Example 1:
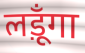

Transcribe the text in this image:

लड़ूँगा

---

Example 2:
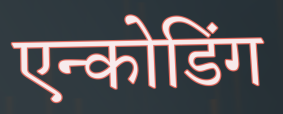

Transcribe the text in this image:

एन्कोडिंग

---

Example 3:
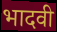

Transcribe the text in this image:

भादवी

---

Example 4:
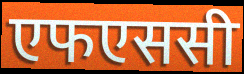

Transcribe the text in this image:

एफएससी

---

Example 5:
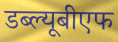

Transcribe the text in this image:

डब्ल्यूबीएफ